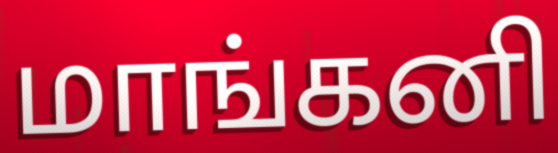
மாங்கனி